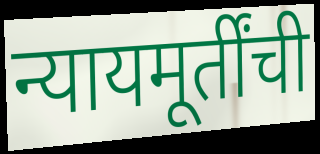
न्यायमूर्तींची